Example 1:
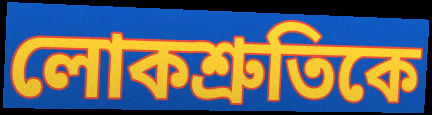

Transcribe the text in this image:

লোকশ্রুতিকে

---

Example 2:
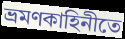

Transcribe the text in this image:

ভ্রমণকাহিনীতে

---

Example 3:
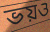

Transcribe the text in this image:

ভয়ও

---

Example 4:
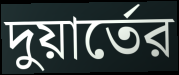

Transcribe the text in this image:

দুয়ার্তের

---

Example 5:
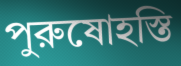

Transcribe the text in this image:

পুরুষোহস্তি